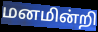
மனமின்றி